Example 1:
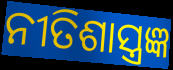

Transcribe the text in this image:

ନୀତିଶାସ୍ତ୍ରଜ୍ଞ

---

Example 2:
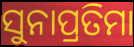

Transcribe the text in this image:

ସୁନାପ୍ରତିମା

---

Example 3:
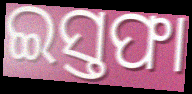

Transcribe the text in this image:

ଇସ୍ତଫା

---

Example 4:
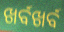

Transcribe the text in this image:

ଖର୍ବଖର୍ବ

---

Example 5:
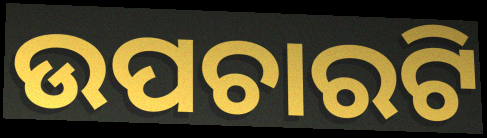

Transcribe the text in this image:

ଉପଚାରଟି